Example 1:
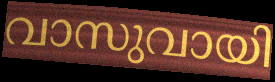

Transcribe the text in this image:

വാസുവായി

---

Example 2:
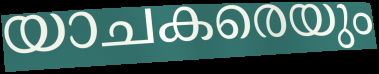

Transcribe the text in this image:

യാചകരെയും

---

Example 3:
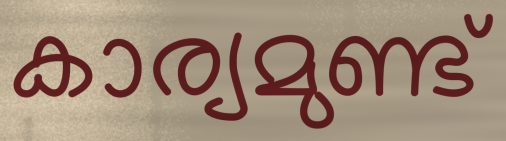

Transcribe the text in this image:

കാര്യമുണ്ട്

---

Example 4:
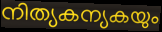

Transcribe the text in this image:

നിത്യകന്യകയും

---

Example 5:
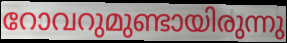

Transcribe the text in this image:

റോവറുമുണ്ടായിരുന്നു